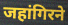
जहांगिरने